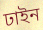
ঢাইন